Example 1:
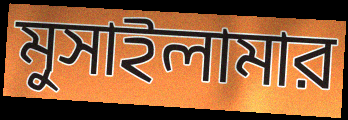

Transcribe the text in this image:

মুসাইলামার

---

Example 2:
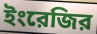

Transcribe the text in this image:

ইংরেজির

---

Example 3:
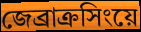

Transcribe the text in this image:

জেব্রাক্রসিংয়ে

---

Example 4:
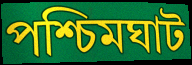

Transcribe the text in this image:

পশ্চিমঘাট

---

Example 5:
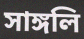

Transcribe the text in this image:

সাঙ্গলি